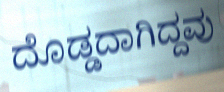
ದೊಡ್ಡದಾಗಿದ್ದವು